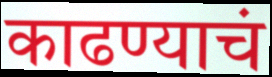
काढण्याचं